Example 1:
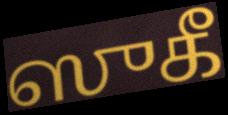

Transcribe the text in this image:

ஸுகீ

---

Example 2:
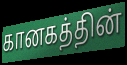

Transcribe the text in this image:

கானகத்தின்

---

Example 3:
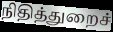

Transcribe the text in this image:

நிதித்துறைச்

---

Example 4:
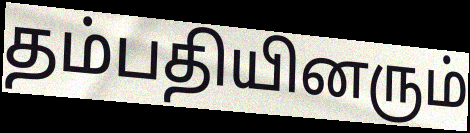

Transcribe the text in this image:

தம்பதியினரும்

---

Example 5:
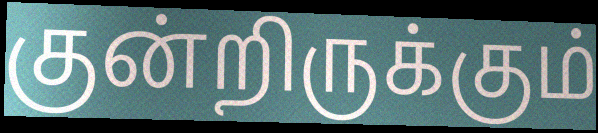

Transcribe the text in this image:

குன்றிருக்கும்